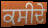
ਕਸੀਦੇ